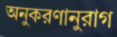
অনুকরণানুরাগ